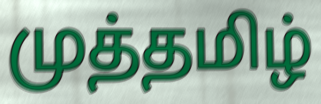
முத்தமிழ்